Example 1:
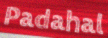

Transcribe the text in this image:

Padahal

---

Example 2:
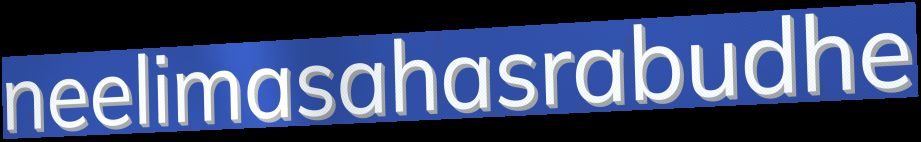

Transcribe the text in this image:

neelimasahasrabudhe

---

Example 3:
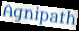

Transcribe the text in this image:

Agnipath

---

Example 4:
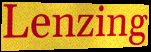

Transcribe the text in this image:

Lenzing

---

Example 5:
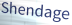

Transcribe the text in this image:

Shendage